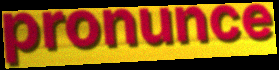
pronunce